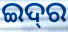
ଇଦ୍‍ର